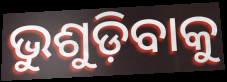
ଭୁଶୁଡ଼ିବାକୁ